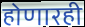
होणारही